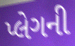
પ્લેગની